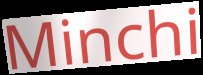
Minchi